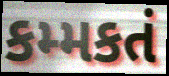
કમ્મકતં